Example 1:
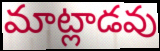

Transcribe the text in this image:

మాట్లాడవు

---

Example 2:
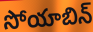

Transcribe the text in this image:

సోయాబిన్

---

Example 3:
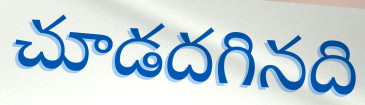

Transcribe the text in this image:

చూడదగినది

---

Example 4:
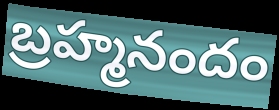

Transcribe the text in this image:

బ్రహ్మనందం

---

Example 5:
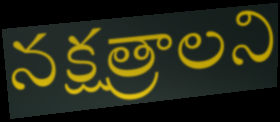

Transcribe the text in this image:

నక్షత్రాలని